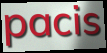
pacis